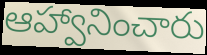
ఆహ్వానించారు